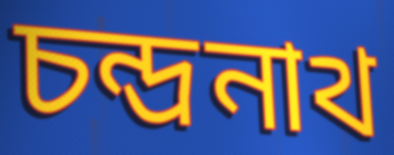
চন্দ্রনাথ